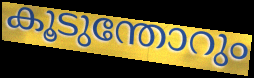
കൂടുന്തോറും